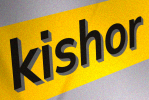
kishor